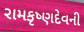
રામકૃષ્ણદેવની